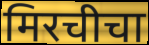
मिरचीचा